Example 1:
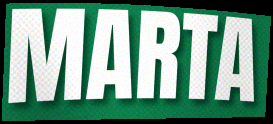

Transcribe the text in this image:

MARTA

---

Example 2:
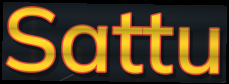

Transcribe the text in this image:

Sattu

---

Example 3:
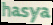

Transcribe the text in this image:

hasya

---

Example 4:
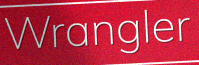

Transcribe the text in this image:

Wrangler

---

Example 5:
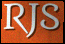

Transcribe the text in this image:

RJS